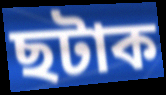
ছটাক